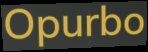
Opurbo